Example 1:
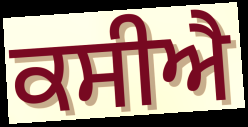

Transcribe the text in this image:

ਕਸੀਐ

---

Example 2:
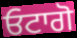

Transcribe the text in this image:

ਓਟਾਗੋ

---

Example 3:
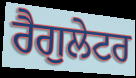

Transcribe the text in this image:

ਰੈਗੁਲੇਟਰ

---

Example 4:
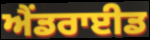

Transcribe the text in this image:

ਐਂਡਰਾਈਡ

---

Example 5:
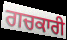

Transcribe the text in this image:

ਗਚਕਾਰੀ